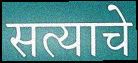
सत्याचे